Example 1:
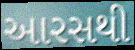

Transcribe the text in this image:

આરસથી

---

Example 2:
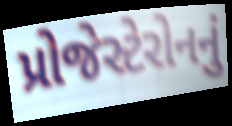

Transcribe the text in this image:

પ્રોજેસ્ટેરોનનું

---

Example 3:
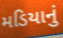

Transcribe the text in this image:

મડિયાનું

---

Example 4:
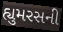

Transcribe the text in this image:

હ્યુમરસની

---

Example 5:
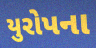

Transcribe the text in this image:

યુરોપના